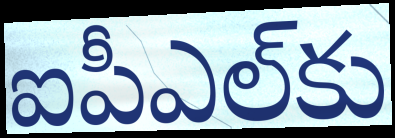
ఐపీఎల్‌కు